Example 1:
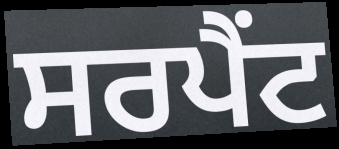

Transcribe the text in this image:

ਸਰਪੈਂਟ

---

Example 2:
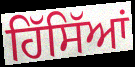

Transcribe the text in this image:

ਹਿੱਸਿੱਆਂ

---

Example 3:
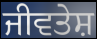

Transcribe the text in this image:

ਜੀਵਤੇਸ਼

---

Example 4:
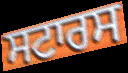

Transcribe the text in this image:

ਸਟਾਰਸ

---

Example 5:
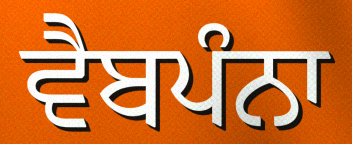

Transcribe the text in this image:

ਵੈਬਪੰਨਾ